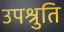
उपश्रुति